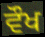
ਵੌਖ